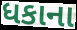
ધકાના